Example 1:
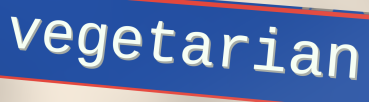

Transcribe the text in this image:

vegetarian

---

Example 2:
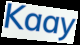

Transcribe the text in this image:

Kaay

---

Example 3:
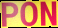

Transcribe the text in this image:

PON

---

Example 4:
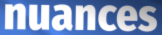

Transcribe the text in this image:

nuances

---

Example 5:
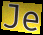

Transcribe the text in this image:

Je